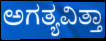
ಅಗತ್ಯವಿತ್ತಾ